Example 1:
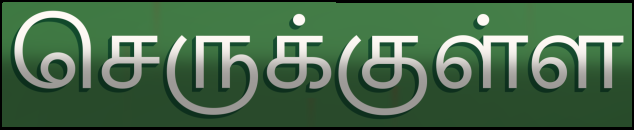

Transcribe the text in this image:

செருக்குள்ள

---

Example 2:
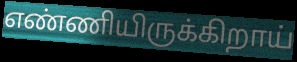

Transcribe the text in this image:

எண்ணியிருக்கிறாய்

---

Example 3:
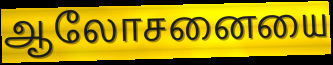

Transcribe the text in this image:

ஆலோசனையை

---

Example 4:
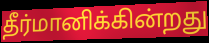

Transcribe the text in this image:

தீர்மானிக்கின்றது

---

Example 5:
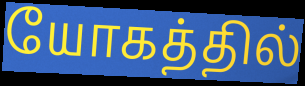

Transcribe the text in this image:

யோகத்தில்